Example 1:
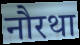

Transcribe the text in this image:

नौरथा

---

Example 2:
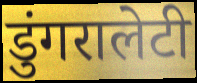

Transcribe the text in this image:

डुंगरालेटी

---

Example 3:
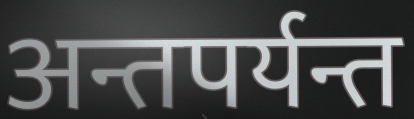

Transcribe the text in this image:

अन्तपर्यन्त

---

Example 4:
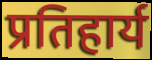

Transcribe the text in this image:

प्रतिहार्य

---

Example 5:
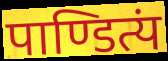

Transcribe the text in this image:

पाण्डित्यं